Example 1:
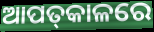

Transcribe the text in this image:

ଆପତ୍‌କାଳରେ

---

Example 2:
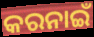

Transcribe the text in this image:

କରନାଇଁ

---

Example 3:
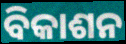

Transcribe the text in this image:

ବିକାଶନ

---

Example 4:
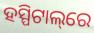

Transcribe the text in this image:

ହସ୍ପିଟାଲ୍‌ରେ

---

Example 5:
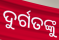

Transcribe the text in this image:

ଦୁର୍ଗତଙ୍କୁ